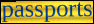
passports